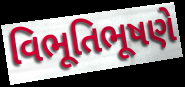
વિભૂતિભૂષણે